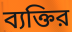
ব্যক্তির